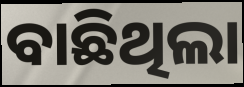
ବାଛିଥିଲା